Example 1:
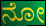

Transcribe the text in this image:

ನೋ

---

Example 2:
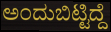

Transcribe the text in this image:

ಅಂದುಬಿಟ್ಟಿದ್ದೆ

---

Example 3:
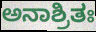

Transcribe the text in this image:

ಅನಾಶ್ರಿತಃ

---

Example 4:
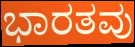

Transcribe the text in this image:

ಭಾರತವು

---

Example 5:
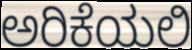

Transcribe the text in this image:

ಅರಿಕೆಯಲಿ